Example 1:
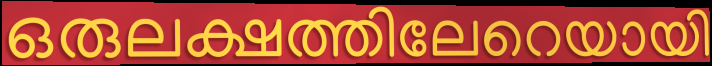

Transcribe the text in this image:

ഒരുലക്ഷത്തിലേറെയായി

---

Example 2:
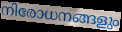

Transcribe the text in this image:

നിരോധനങ്ങളും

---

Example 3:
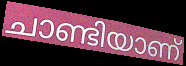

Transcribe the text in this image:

ചാണ്ടിയാണ്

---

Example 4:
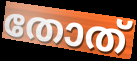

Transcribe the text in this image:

തോത്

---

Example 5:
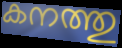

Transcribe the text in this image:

കനത്തു